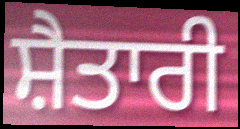
ਸ਼ੈਤਾਰੀ